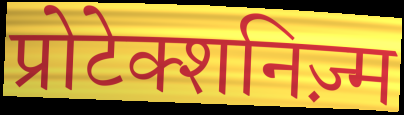
प्रोटेक्शनिज़्म